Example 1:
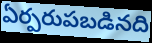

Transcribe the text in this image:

ఏర్పరుపబడినది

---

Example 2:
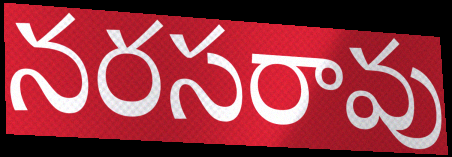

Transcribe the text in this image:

నరసరావు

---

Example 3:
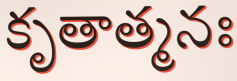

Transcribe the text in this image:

కృతాత్మనః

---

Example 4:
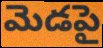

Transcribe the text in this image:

మెడపై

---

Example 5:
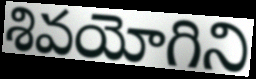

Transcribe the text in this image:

శివయోగిని